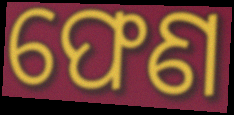
ଫେଣ